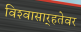
विश्वासार्हतेवर